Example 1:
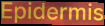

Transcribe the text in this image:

Epidermis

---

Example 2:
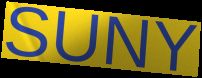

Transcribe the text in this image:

SUNY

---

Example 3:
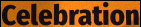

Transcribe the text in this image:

Celebration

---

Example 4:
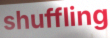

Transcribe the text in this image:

shuffling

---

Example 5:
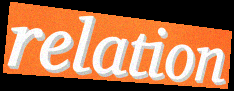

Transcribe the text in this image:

relation